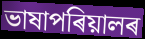
ভাষাপৰিয়ালৰ